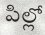
పిల్లో